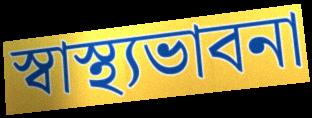
স্বাস্থ্যভাবনা